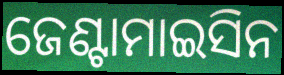
ଜେଣ୍ଟାମାଇସିନ